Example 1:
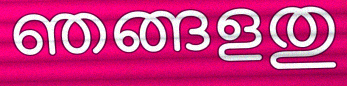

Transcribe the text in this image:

ഞങ്ങളതു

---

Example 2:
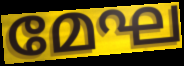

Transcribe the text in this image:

മേഘ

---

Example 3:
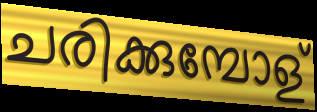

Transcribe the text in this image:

ചരിക്കുമ്പോള്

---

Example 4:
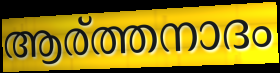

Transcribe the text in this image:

ആര്ത്തനാദം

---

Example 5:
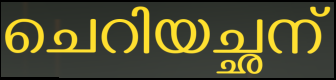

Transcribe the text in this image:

ചെറിയച്ഛന്